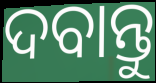
ଦବାନ୍ତୁ